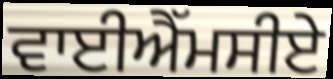
ਵਾਈਐੱਮਸੀਏ